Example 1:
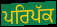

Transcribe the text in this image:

ਪਰਿਪੱਕ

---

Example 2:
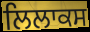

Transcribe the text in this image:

ਲਿਲਾਕਸ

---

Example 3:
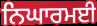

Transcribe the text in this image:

ਨਿਘਾਰਮਈ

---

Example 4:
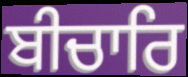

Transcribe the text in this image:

ਬੀਚਾਰਿ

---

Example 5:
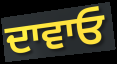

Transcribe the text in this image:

ਦਾਵਾਓ